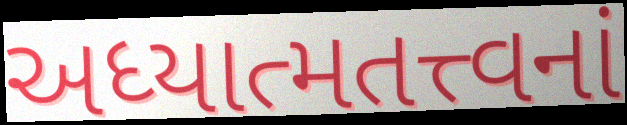
અધ્યાત્મતત્ત્વનાં